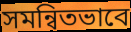
সমন্বিতভাবে